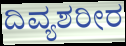
ದಿವ್ಯಶರೀರ